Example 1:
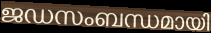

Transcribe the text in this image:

ജഡസംബന്ധമായി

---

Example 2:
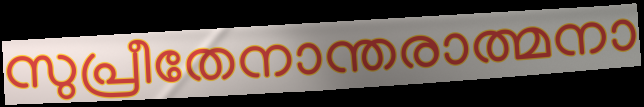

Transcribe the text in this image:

സുപ്രീതേനാന്തരാത്മനാ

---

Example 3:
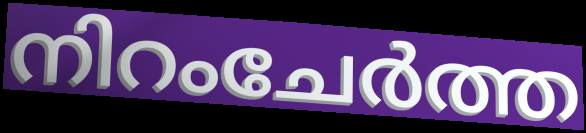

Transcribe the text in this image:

നിറംചേർത്ത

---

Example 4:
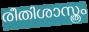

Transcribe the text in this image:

രീതിശാസ്ത്രം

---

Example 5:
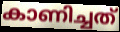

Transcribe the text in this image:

കാണിച്ചത്